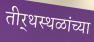
तीर्थस्थळांच्या